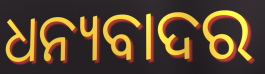
ଧନ୍ୟବାଦର